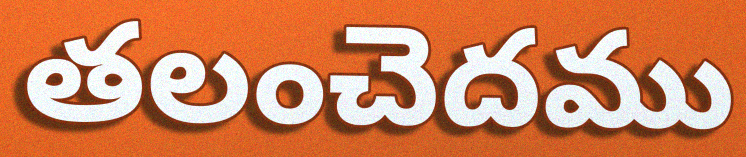
తలంచెదము